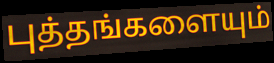
புத்தங்களையும்